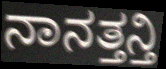
ನಾನತ್ತನ್ತಿ